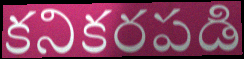
కనికరపడి